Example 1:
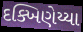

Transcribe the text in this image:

દક્ખિણેય્યા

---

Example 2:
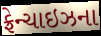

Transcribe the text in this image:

ફ્રેન્ચાઇઝના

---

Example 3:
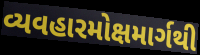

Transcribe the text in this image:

વ્યવહારમોક્ષમાર્ગથી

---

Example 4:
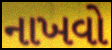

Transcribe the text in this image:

નાખવો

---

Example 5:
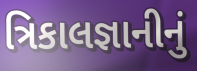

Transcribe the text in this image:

ત્રિકાલજ્ઞાનીનું